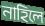
নাহিলে